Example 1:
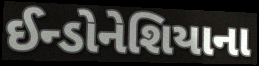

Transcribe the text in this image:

ઈન્ડોનેશિયાના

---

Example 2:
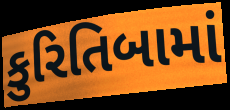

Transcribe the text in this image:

કુરિતિબામાં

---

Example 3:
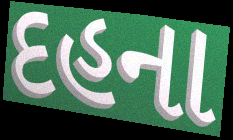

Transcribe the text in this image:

દહના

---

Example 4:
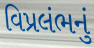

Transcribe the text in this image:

વિપ્રલંભનું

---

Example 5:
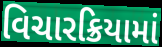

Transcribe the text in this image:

વિચારક્રિયામાં